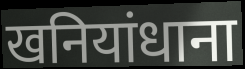
खनियांधाना